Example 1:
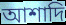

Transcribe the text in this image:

আশাদি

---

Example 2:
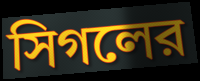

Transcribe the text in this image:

সিগলের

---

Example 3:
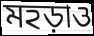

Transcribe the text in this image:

মহড়াও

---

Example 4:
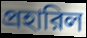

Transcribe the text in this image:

প্রহারিল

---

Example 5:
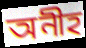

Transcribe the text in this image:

অনীহ